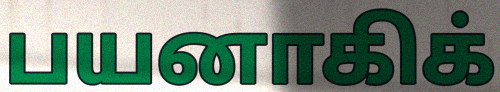
பயனாகிக்